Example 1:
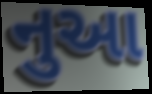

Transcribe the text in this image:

નુઆ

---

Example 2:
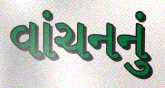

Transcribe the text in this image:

વાંચનનું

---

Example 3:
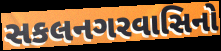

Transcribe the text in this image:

સકલનગરવાસિનો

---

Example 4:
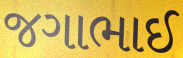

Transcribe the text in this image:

જગાભાઈ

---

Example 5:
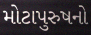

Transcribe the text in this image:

મોટાપુરુષનો